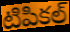
టిపికల్